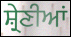
ਸ਼੍ਰੇਣੀਆਂ